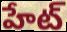
హేట్